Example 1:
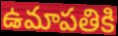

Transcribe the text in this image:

ఉమాపతికి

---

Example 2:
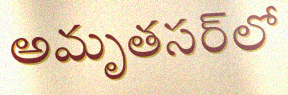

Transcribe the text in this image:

అమృతసర్‌లో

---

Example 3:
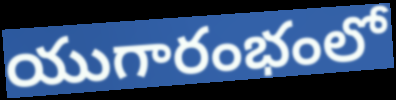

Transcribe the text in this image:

యుగారంభంలో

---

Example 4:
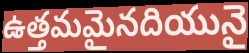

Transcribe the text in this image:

ఉత్తమమైనదియునై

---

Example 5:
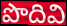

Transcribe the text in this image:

పొదివి